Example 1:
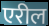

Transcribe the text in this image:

एरील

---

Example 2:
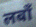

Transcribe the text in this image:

लबाँ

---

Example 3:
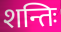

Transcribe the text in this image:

शन्तिः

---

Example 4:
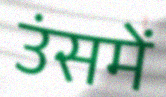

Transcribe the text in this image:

उंसमें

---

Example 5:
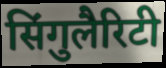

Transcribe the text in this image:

सिंगुलैरिटी